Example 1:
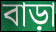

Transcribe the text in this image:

বাড়া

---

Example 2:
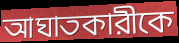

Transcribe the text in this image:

আঘাতকারীকে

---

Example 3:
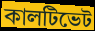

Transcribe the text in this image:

কালটিভেট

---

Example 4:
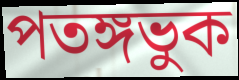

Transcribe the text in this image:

পতঙ্গভুক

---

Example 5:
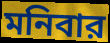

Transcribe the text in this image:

মনিবার